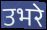
उभरे